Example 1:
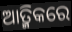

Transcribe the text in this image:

ଆତ୍ମିକରେ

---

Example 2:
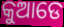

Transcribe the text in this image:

କୁଆଡେ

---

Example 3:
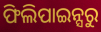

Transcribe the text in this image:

ଫିଲିପାଇନ୍ସରୁ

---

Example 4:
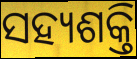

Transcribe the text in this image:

ସହ୍ୟଶକ୍ତି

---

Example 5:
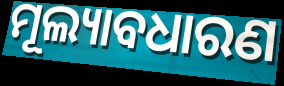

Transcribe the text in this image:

ମୂଲ୍ୟାବଧାରଣ